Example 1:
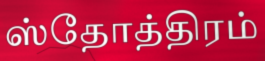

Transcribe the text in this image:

ஸ்தோத்திரம்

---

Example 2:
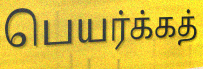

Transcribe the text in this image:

பெயர்க்கத்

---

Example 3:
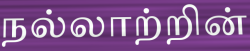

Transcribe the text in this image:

நல்லாற்றின்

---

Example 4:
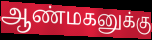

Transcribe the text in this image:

ஆண்மகனுக்கு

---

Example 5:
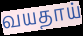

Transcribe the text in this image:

வயதாய்